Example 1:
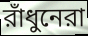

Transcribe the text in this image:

রাঁধুনেরা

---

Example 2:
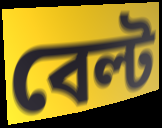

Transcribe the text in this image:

বেল্ট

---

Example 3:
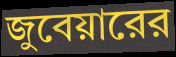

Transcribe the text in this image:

জুবেয়ারের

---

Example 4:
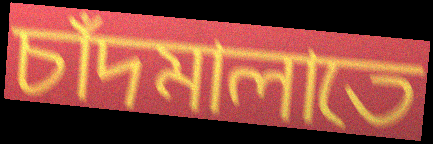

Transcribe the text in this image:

চাঁদমালাতে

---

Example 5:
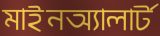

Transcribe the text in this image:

মাইনঅ্যালার্ট